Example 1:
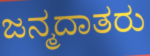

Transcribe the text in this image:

ಜನ್ಮದಾತರು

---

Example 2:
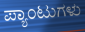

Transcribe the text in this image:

ಪ್ಯಾಂಟುಗಳು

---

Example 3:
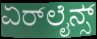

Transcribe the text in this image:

ಏರ್‌ಲೈನ್ಸ್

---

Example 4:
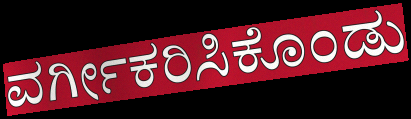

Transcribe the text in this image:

ವರ್ಗೀಕರಿಸಿಕೊಂಡು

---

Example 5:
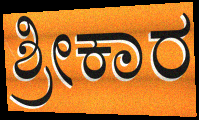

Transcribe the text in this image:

ಶ್ರೀಕಾರ